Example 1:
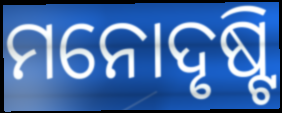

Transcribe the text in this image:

ମନୋଦୃଷ୍ଟି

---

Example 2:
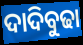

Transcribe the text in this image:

ଦାଦିବୁଢା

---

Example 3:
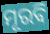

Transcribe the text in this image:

ମୂରବି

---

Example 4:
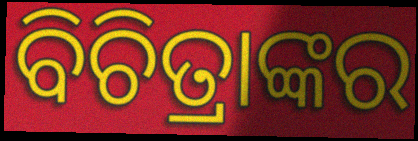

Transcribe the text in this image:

ବିଚିତ୍ରାଙ୍କର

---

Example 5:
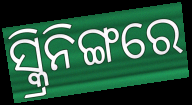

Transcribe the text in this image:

ସ୍କ୍ରିନିଙ୍ଗରେ